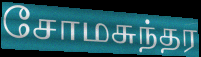
சோமசுந்தர